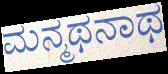
ಮನ್ಮಥನಾಥ